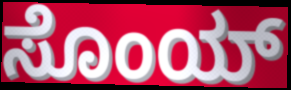
ಸೊಂಯ್